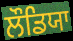
ਲੌਡਿਯਾ